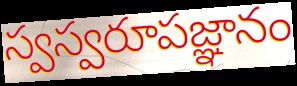
స్వస్వరూపజ్ఞానం